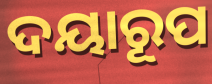
ଦୟାରୂପ